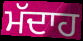
ਮੱਦਾਹ